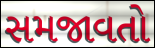
સમજાવતો